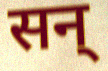
सन्